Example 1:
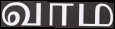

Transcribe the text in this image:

வாம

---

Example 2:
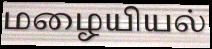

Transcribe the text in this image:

மழையியல்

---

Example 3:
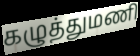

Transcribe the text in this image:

கழுத்துமணி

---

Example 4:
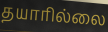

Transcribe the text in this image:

தயாரில்லை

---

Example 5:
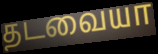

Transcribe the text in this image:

தடவையா